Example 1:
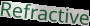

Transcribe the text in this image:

Refractive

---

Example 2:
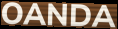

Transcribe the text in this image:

OANDA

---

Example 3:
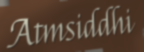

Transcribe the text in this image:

Atmsiddhi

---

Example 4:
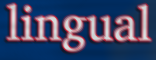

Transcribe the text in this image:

lingual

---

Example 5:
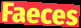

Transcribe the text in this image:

Faeces